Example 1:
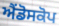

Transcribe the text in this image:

ਐਂਡੋਸਕੋਪ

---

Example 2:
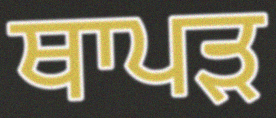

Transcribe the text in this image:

ਥਾਪੜ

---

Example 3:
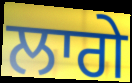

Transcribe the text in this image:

ਲਾਗੇ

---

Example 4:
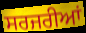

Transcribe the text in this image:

ਸਰਜਰੀਆਂ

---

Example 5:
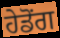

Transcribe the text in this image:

ਹੇਡੋਂਗ